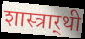
शास्त्रार्थी